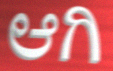
ಆಗಿ